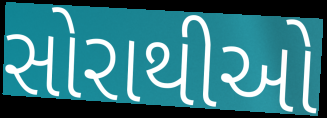
સોરાથીઓ